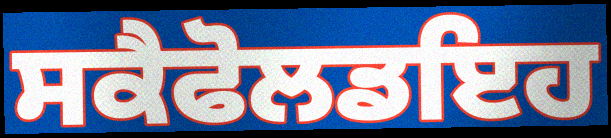
ਸਕੈਫੋਲਡਇਹ